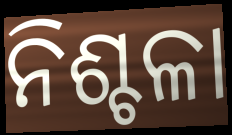
ନିଶ୍ଚଳା